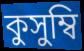
কুসুম্বি